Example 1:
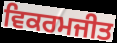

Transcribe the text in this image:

ਵਿਕਰਮਜੀਤ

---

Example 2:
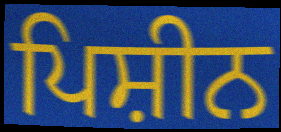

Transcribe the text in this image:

ਪਿਸ਼ੀਨ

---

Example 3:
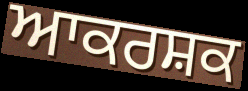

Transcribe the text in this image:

ਆਕਰਸ਼ਕ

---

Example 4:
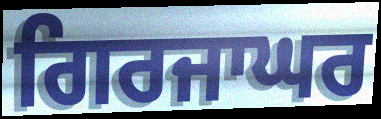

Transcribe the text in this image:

ਗਿਰਜਾਘਰ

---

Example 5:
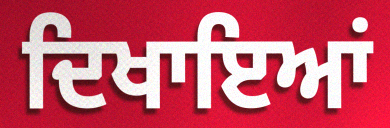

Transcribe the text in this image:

ਦਿਖਾਇਆਂ